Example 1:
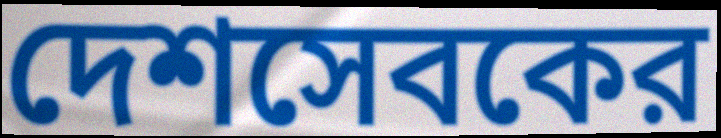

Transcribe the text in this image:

দেশসেবকের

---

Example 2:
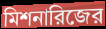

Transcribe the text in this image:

মিশনারিজের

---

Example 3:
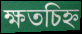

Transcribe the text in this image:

ক্ষতচিহ্ন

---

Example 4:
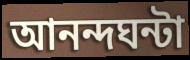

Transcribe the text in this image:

আনন্দঘন্টা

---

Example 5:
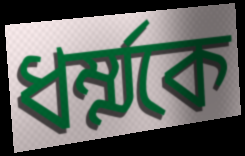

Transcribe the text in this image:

ধর্ম্মকে